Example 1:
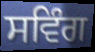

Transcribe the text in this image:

ਸਵਿੰਗ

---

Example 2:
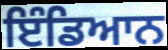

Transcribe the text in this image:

ਇੰਡਿਆਨ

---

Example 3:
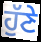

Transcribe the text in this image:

ਹੁੱਣੇ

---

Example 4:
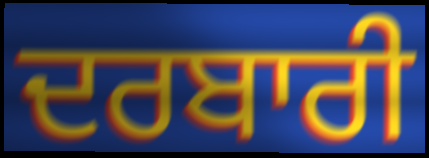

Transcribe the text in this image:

ਦਰਬਾਰੀ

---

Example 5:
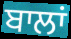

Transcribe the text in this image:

ਬਾਲਾਂ